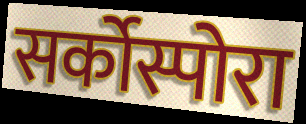
सर्कोस्पोरा